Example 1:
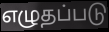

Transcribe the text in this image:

எழுதப்படு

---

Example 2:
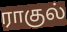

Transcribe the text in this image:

ராகுல்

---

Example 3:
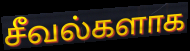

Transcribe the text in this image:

சீவல்களாக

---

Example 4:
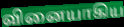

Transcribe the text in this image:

வினையாகிய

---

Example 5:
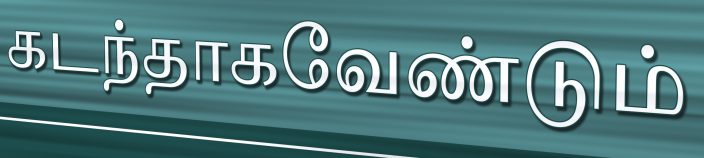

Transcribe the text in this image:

கடந்தாகவேண்டும்